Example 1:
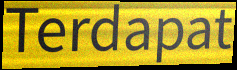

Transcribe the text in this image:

Terdapat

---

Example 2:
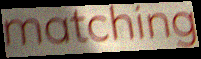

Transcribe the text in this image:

matching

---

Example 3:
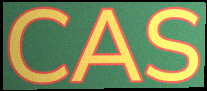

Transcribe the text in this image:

CAS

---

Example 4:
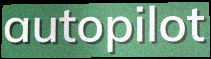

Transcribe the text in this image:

autopilot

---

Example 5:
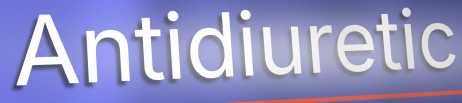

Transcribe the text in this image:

Antidiuretic